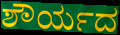
ಶೌರ್ಯದ